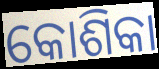
କୋଶିକା